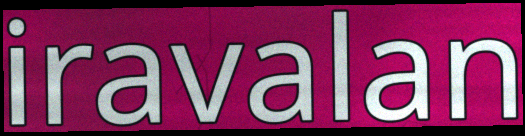
iravalan